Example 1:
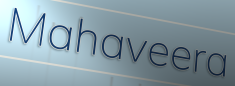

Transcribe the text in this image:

Mahaveera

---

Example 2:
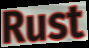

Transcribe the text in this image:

Rust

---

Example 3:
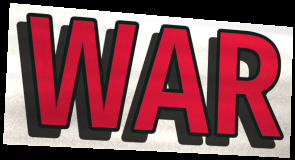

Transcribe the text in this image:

WAR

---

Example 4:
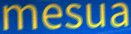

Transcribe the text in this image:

mesua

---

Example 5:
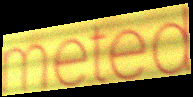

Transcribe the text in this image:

meted